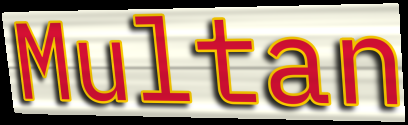
Multan